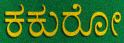
ಕಕುರೋ